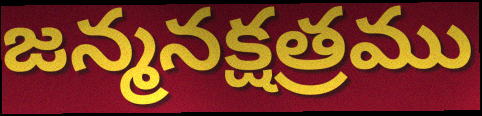
జన్మనక్షత్రము